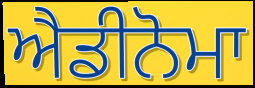
ਐਡੀਨੋਮਾ